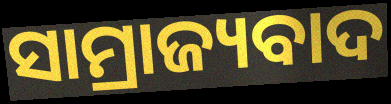
ସାମ୍ରାଜ୍ୟବାଦ